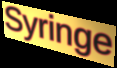
Syringe